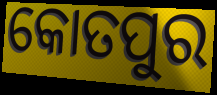
କୋତପୁର